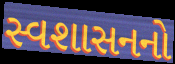
સ્વશાસનનો